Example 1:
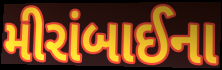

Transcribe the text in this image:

મીરાંબાઈના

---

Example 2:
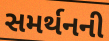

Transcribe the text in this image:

સમર્થનની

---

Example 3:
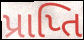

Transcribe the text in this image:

પ્રાપ્તિ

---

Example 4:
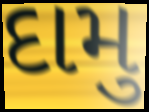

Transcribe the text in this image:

દામુ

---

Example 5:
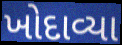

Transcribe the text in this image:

ખોદાવ્યા